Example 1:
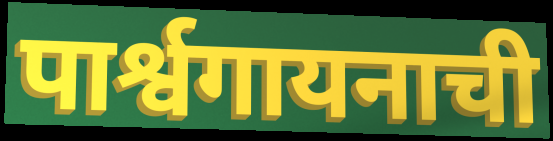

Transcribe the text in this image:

पार्श्वगायनाची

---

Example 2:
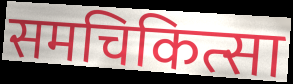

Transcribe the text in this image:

समचिकित्सा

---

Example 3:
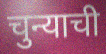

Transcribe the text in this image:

चुन्याची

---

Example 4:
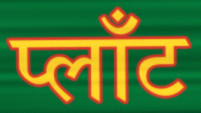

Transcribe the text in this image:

प्लाँट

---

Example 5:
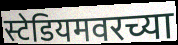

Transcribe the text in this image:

स्टेडियमवरच्या